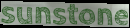
sunstone